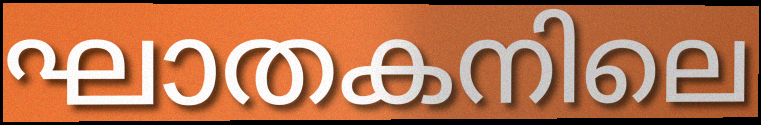
ഘാതകനിലെ